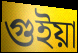
গুইয়া